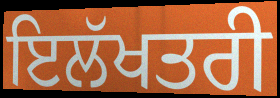
ਇਲੱਖਤਰੀ